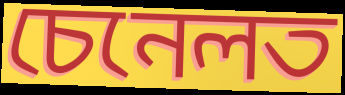
চেনেলত